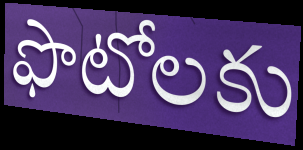
ఫొటోలకు